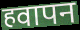
हवापन